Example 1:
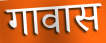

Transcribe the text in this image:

गावास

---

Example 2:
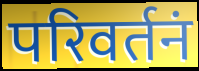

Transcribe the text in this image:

परिवर्तनं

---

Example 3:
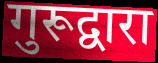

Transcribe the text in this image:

गुरूद्वारा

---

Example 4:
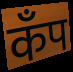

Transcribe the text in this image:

कॅंप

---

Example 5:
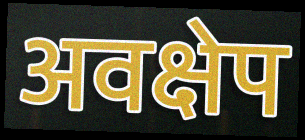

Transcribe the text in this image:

अवक्षेप